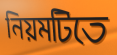
নিয়মটিতে